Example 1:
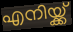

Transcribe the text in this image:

എനിയ്ക്ക്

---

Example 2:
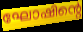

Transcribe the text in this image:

ഘോഷിന്റെ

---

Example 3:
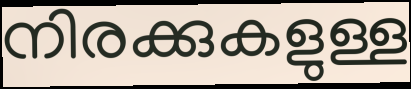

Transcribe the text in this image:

നിരക്കുകളുള്ള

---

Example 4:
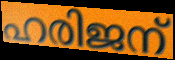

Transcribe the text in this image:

ഹരിജന്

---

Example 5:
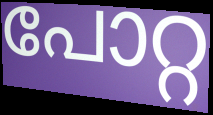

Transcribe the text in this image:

പോറ്റ